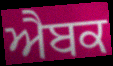
ਐਬਕ